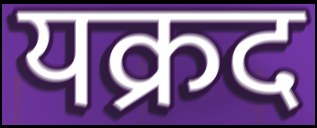
यक्रद